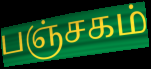
பஞ்சகம்